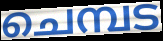
ചെമ്പട